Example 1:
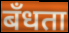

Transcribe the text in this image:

बँधता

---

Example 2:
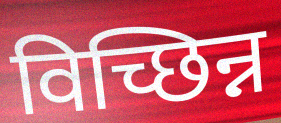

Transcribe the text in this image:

विच्छिन्न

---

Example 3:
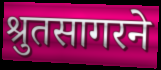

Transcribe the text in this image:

श्रुतसागरने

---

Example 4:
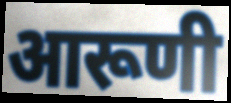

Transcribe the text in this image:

आरूणी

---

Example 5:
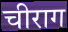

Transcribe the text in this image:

चीराग